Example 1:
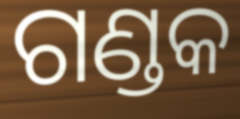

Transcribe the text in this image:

ଗଣ୍ଡକ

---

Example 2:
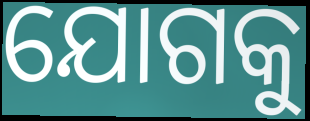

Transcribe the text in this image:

ଯୋଗକୁ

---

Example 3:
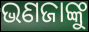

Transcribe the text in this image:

ଭଣଜାଙ୍କୁ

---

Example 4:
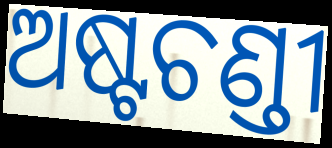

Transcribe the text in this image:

ଅଷ୍ଟଚଣ୍ଡୀ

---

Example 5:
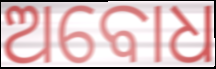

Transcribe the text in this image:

ଅବୋଧ